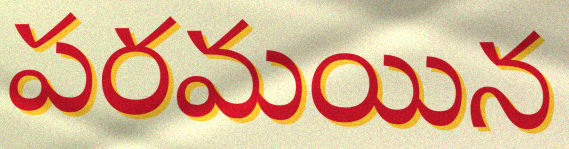
పరమయిన